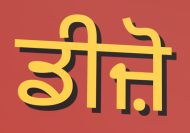
ਡੀਜ਼ੋ